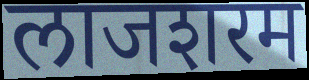
लाजशरम